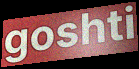
goshti